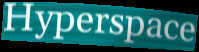
Hyperspace